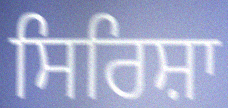
ਸਿਰਿਸ਼ਾ